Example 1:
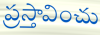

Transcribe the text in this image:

ప్రస్తావించు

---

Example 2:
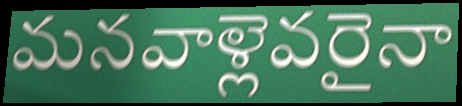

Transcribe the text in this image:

మనవాళ్లెవరైనా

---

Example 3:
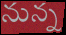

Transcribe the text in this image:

నున్న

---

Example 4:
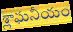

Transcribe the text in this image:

శ్లాఘనీయం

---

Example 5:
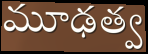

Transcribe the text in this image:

మూఢత్వ